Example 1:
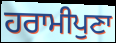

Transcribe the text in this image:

ਹਰਾਮੀਪੁਣਾ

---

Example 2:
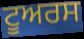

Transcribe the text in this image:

ਟੂਅਰਸ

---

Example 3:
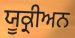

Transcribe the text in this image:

ਯੂਕ੍ਰੀਅਨ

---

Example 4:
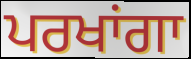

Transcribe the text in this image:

ਪਰਖਾਂਗਾ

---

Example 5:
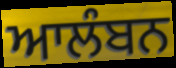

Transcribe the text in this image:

ਆਲੰਬਨ